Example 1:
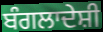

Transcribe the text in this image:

ਬੰਗਲਾਦੇਸ਼ੀ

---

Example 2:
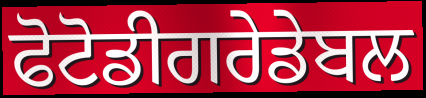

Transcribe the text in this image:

ਫੋਟੋਡੀਗਰੇਡੇਬਲ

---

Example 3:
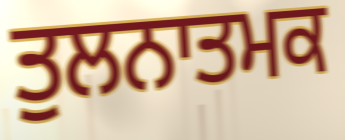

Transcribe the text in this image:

ਤੁਲਨਾਤਮਕ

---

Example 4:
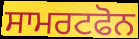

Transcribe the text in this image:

ਸਾਮਰਟਫੋਨ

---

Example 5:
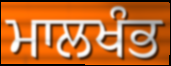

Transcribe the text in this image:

ਮਾਲਖੰਭ